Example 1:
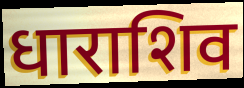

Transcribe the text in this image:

धाराशिव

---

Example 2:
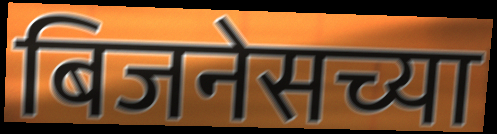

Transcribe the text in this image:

बिजनेसच्या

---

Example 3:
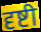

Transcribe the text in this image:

दृष्टी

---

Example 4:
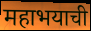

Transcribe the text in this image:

महाभयाची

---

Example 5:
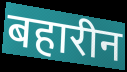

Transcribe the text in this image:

बहारीन